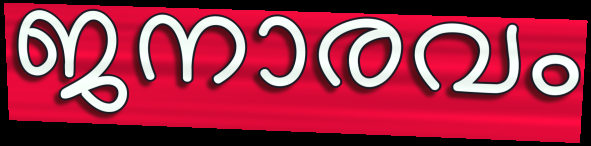
ജനാരവം